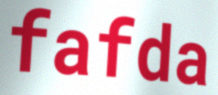
fafda